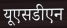
यूएसडीएन